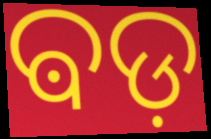
ଵଡ଼